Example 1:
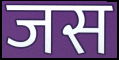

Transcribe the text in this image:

जस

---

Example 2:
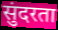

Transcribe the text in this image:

सुंदरता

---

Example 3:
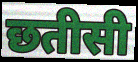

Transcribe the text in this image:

छतीसी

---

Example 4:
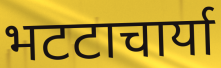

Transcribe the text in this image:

भटटाचार्या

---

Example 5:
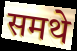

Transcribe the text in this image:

समथे